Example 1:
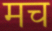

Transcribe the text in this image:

मच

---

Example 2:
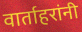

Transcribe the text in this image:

वार्ताहरांनी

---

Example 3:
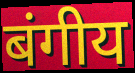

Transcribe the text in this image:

बंगीय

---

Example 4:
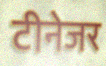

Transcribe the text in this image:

टीनेजर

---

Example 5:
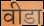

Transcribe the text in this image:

वीडा